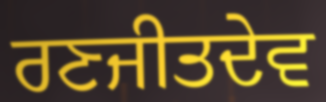
ਰਣਜੀਤਦੇਵ